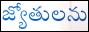
జ్యోతులను